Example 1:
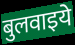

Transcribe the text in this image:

बुलवाइये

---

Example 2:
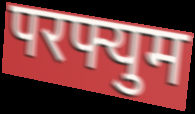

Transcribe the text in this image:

परफ्युम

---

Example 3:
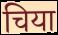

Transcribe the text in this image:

चिया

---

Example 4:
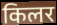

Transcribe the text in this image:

किलर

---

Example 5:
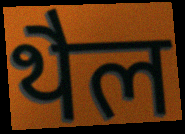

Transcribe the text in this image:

थैल